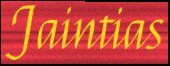
Jaintias